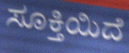
ಸೂಕ್ತಿಯಿದೆ